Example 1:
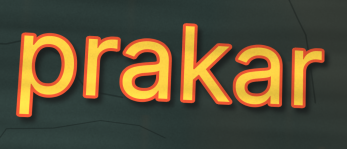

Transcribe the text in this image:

prakar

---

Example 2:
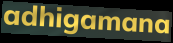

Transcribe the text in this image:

adhigamana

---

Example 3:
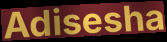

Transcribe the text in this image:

Adisesha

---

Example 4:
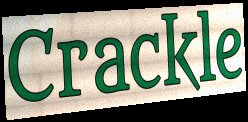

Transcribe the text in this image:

Crackle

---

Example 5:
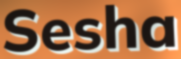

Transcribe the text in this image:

Sesha